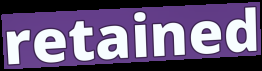
retained